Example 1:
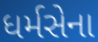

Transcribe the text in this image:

ધર્મસેના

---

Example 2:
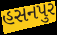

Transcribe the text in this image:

હસનપુર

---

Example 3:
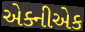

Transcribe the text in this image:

એક્નીએક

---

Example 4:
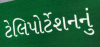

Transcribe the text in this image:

ટેલિપોર્ટેશનનું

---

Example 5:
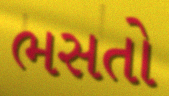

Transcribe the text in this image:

ભસતો